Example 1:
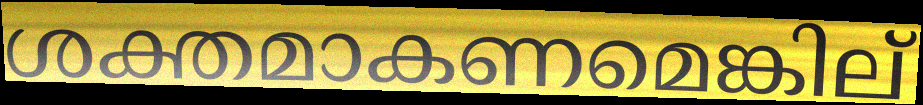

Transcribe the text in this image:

ശക്തമാകണമെങ്കില്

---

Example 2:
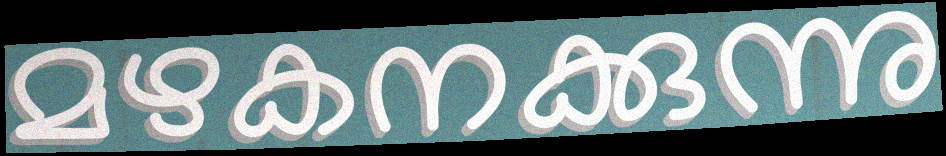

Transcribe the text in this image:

മഴകനക്കുന്നു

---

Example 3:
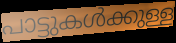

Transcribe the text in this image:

പാട്ടുകൾക്കുള്ള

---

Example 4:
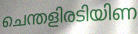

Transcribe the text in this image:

ചെന്തളിരടിയിണ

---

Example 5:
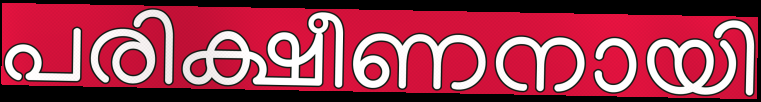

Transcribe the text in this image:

പരിക്ഷീണനായി